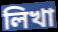
লিখা